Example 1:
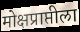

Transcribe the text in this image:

मोक्षप्राप्तीला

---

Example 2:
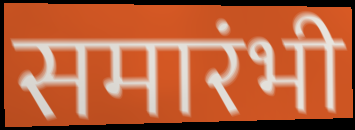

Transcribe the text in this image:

समारंभी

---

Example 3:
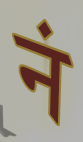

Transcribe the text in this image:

नं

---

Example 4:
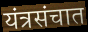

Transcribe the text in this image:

यंत्रसंचात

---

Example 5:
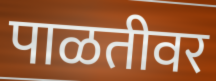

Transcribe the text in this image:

पाळतीवर